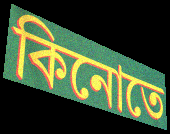
কিনোতে